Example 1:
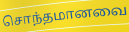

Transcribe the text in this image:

சொந்தமானவை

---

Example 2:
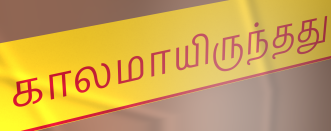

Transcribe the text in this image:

காலமாயிருந்தது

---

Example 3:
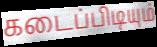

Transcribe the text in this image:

கடைப்பிடியும்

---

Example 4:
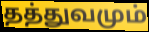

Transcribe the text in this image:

தத்துவமும்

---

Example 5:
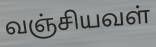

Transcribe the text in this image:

வஞ்சியவள்